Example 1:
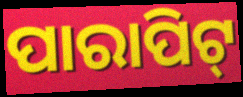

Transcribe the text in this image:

ପାରାପିଟ୍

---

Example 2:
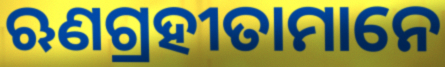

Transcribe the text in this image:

ଋଣଗ୍ରହୀତାମାନେ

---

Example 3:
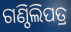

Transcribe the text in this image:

ଗଣ୍ଠିଲିପତ୍ର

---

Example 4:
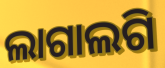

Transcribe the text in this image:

ଲାଗାଲଗି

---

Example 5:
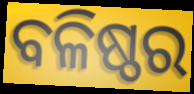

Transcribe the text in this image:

ବଳିଷ୍ଠର